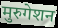
मुरुगेशन